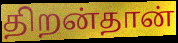
திறன்தான்